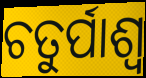
ଚତୁର୍ପାଶ୍ୱ